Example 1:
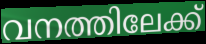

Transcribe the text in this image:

വനത്തിലേക്ക്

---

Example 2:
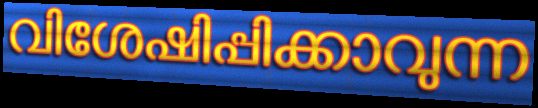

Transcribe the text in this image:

വിശേഷിപ്പിക്കാവുന്ന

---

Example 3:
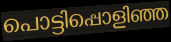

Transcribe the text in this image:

പൊട്ടിപ്പൊളിഞ്ഞ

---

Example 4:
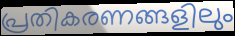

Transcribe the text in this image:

പ്രതികരണങ്ങളിലും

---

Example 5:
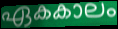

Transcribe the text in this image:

ഏകകാലം